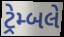
ટ્રેમ્બલે